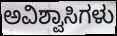
ಅವಿಶ್ವಾಸಿಗಳು